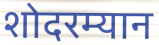
शोदरम्यान